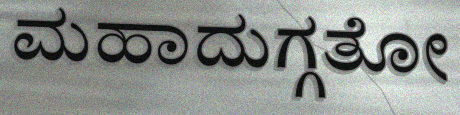
ಮಹಾದುಗ್ಗತೋ